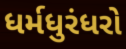
ધર્મધુરંધરો